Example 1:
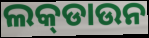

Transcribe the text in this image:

ଲକ୍‍ଡାଉନ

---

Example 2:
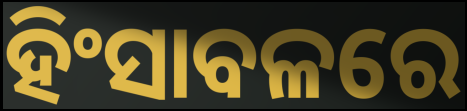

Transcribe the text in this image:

ହିଂସାବଳରେ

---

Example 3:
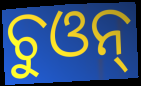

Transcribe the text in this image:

ଚୁଓନ୍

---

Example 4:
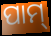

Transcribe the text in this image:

ପାମ୍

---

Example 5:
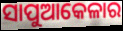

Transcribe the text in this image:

ସାପୁଆକେଳାର